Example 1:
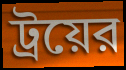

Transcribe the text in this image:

ট্রয়ের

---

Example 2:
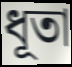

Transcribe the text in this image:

ধূতা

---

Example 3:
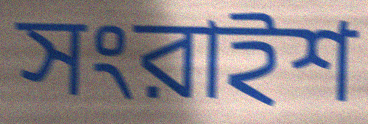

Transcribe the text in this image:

সংরাইশ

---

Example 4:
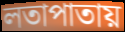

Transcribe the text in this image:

লতাপাতায়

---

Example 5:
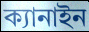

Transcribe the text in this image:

ক্যানাইন